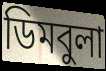
ডিমবুলা